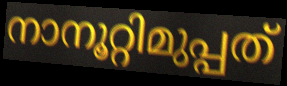
നാനൂറ്റിമുപ്പത്